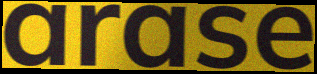
arase